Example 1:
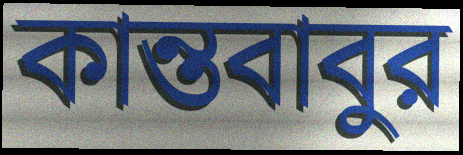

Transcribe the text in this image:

কান্তবাবুর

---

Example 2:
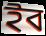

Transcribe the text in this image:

ইব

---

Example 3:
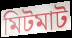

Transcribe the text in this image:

মিটমাট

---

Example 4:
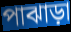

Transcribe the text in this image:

পাঝাড়া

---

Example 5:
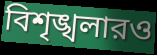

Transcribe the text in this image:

বিশৃঙ্খলারও